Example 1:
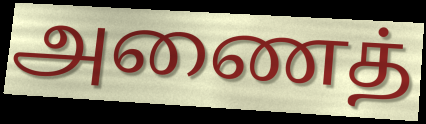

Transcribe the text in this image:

அணைத்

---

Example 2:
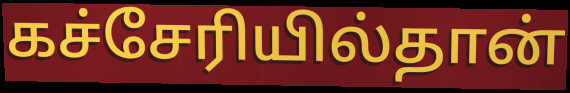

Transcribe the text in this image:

கச்சேரியில்தான்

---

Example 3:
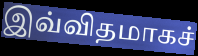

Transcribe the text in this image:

இவ்விதமாகச்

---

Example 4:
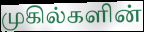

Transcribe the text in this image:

முகில்களின்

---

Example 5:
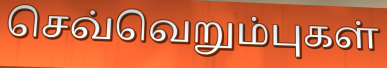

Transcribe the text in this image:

செவ்வெறும்புகள்